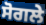
ਸੋਗਲੇ